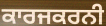
ਕਾਰਜਕਰਨੀ